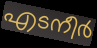
എടനീർ